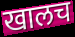
खालच